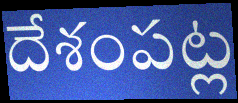
దేశంపట్ల